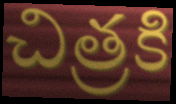
చిత్రకి